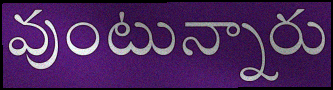
వుంటున్నారు